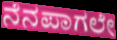
ನೆನಪಾಗಲೇ